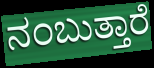
ನಂಬುತ್ತಾರೆ